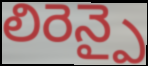
లిరెన్పై